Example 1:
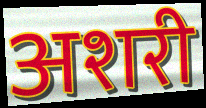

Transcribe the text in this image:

अशरी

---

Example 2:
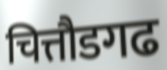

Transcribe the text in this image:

चित्तौडगढ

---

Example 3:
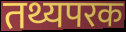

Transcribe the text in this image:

तथ्यपरक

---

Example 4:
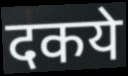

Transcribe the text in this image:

दकये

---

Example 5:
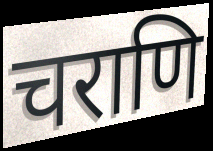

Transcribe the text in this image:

चराणि